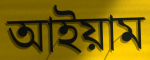
আইয়াম